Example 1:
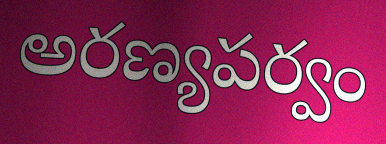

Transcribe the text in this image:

అరణ్యపర్వం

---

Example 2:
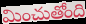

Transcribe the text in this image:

మించుతోంది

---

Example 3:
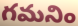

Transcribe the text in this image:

గమనిం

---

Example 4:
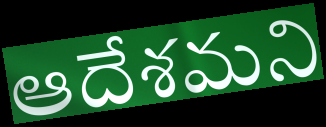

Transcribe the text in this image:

ఆదేశమని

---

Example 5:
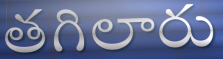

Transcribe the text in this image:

తగిలారు